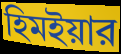
হিমইয়ার